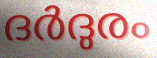
ദർദുരം